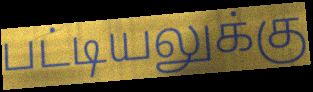
பட்டியலுக்கு